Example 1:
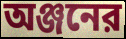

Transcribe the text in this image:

অঞ্জনের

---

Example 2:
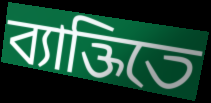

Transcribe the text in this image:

ব্যাক্তিতে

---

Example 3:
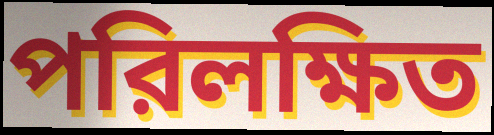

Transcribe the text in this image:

পরিলক্ষিত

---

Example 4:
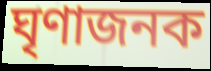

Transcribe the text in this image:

ঘৃণাজনক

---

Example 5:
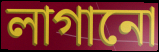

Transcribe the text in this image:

লাগানো